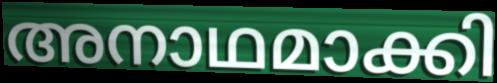
അനാഥമാക്കി